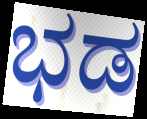
ಭಡ